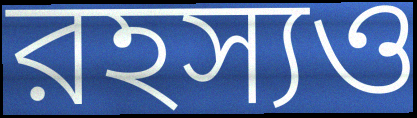
রহস্যও